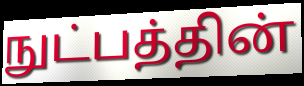
நுட்பத்தின்